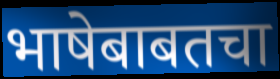
भाषेबाबतचा